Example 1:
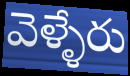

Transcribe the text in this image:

వెళ్ళేరు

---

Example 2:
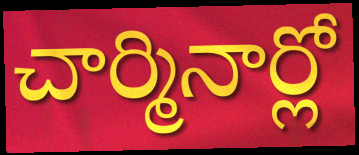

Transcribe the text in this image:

చార్మినార్లో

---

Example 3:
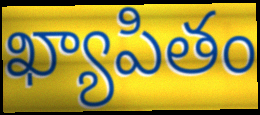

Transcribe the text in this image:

ఖ్యాపితం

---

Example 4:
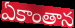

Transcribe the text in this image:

ఏకాంతాన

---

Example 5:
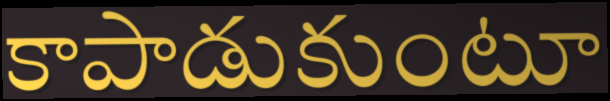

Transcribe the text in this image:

కాపాడుకుంటూ